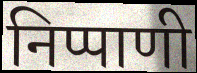
निप्पाणी